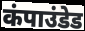
कंपाउंडेड